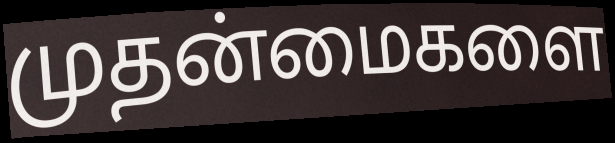
முதன்மைகளை